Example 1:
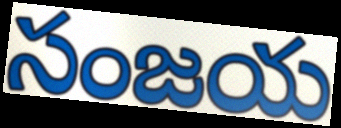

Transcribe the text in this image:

సంజయ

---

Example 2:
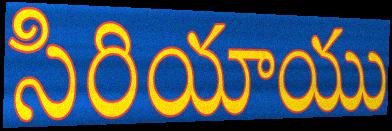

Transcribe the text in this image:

సిరియాయు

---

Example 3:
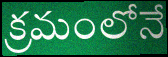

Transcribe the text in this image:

క్రమంలోనే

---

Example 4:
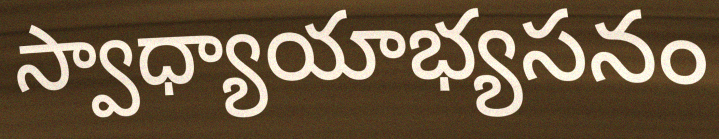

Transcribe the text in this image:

స్వాధ్యాయాభ్యసనం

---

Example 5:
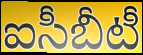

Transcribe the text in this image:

ఐసీబీటీ